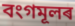
বংগমূলৰ